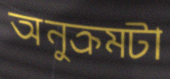
অনুক্রমটা